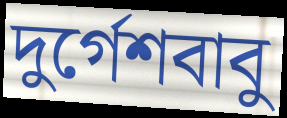
দুর্গেশবাবু